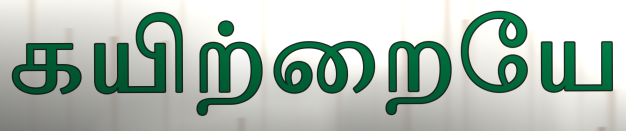
கயிற்றையே